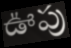
ఊపు